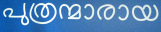
പുത്രന്മാരായ